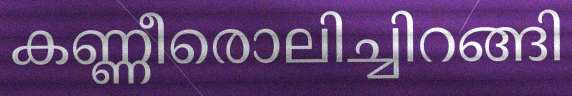
കണ്ണീരൊലിച്ചിറങ്ങി